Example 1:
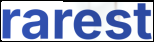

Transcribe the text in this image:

rarest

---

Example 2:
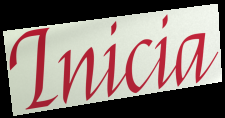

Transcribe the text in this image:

Inicia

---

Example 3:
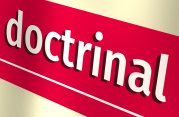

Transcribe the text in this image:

doctrinal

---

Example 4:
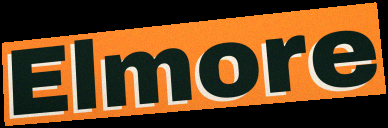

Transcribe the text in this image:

Elmore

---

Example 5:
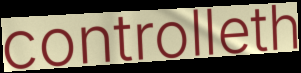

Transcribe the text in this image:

controlleth